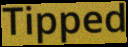
Tipped